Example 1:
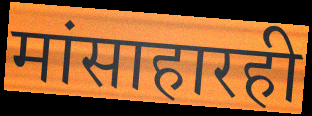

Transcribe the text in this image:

मांसाहारही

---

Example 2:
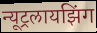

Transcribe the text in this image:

न्यूट्रलायझिंग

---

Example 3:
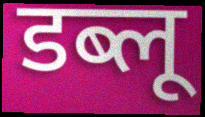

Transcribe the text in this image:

डब्लू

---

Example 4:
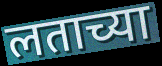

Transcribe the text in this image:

लताच्या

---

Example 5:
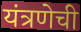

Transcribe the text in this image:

यंत्रणेची